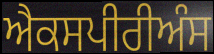
ਐਕਸਪੀਰੀਅੰਸ